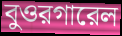
বুওরগারেল